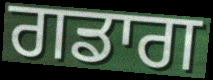
ਗਡਾਗ